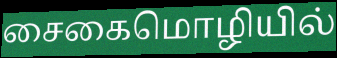
சைகைமொழியில்